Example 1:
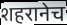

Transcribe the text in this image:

शहरानेच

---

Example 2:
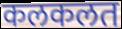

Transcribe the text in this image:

कलकलत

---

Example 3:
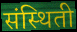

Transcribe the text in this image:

संस्थिती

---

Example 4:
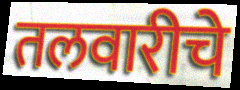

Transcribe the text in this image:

तलवारीचे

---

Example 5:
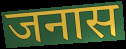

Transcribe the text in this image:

जनास